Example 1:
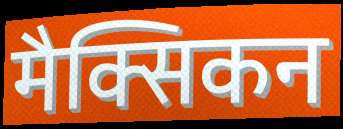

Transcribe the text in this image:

मैक्सिकन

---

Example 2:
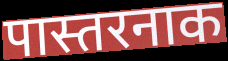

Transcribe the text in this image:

पास्तरनाक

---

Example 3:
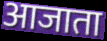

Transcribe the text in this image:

आजाता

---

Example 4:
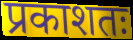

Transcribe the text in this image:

प्रकाशतः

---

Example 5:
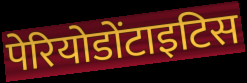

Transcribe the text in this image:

पेरियोडोंटाइटिस